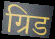
ग्रिड